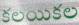
కలయికల